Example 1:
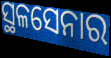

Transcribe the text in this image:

ସ୍ଥଳସେନାର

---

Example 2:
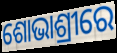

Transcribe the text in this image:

ଶୋଭାଶ୍ରୀରେ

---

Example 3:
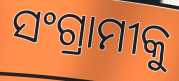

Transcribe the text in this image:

ସଂଗ୍ରାମୀକୁ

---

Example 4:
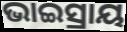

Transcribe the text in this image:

ଭାଇସ୍ରାୟ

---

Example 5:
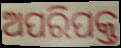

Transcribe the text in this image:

ଅପରିପକ୍ତ